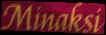
Minaksi